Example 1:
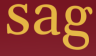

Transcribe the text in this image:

sag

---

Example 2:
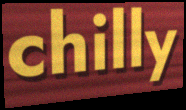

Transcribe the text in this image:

chilly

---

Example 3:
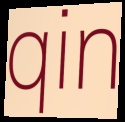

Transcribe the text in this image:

qin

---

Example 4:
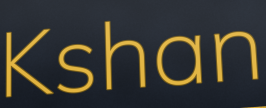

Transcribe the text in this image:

Kshan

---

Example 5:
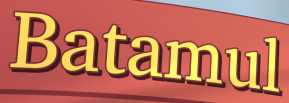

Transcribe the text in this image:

Batamul